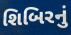
શિબિરનું